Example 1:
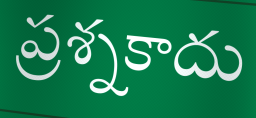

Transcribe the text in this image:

ప్రశ్నకాదు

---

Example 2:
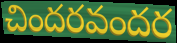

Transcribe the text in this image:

చిందరవందర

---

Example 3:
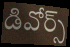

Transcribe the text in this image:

డివోర్స్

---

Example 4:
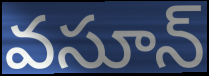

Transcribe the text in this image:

వసూన్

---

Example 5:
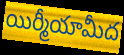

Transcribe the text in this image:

యిర్మీయామీద